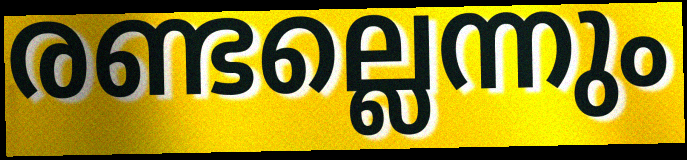
രണ്ടല്ലെന്നും